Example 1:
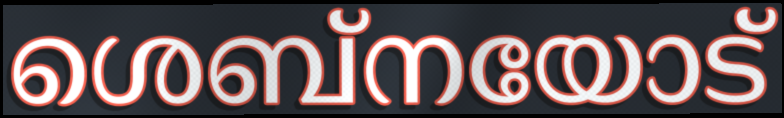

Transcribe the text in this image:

ശെബ്നയോട്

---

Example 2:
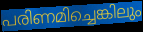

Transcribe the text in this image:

പരിണമിച്ചെങ്കിലും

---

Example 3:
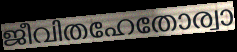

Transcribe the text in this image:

ജീവിതഹേതോര്വാ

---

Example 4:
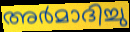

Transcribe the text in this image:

അർമാദിച്ചു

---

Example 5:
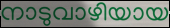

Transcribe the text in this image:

നാടുവാഴിയായ